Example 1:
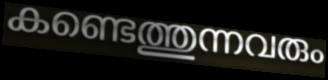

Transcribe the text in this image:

കണ്ടെത്തുന്നവരും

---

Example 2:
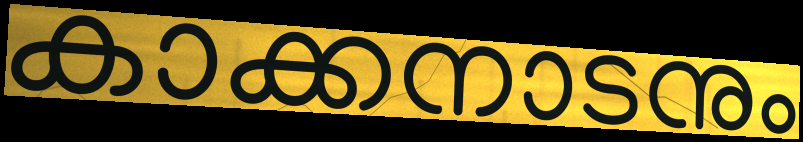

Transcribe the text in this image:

കാക്കനാടനും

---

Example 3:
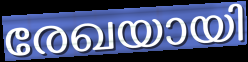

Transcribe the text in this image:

രേഖയായി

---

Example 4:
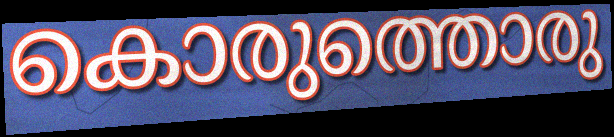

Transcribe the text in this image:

കൊരുത്തൊരു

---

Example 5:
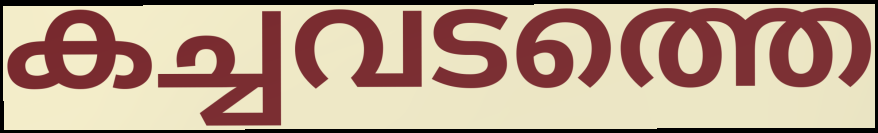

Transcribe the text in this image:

കച്ചവടത്തെ